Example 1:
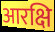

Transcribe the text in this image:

आरक्षि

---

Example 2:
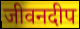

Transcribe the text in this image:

जीवनदीप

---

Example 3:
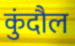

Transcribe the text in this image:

कुंदौल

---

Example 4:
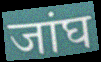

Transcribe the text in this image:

जांघ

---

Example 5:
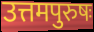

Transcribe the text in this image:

उत्तमपुरुषः